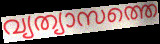
വ്യത്യാസത്തെ